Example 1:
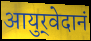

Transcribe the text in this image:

आयुर्वेदानं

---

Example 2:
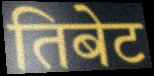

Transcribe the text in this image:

तिबेट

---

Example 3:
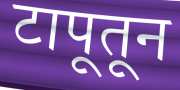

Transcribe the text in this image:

टापूतून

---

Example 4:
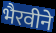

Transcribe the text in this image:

भैरवीने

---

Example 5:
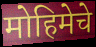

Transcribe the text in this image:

मोहिमेचे